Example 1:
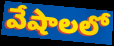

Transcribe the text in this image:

వేషాలలో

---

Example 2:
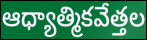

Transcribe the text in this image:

ఆధ్యాత్మికవేత్తల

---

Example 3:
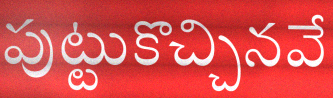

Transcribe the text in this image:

పుట్టుకొచ్చినవే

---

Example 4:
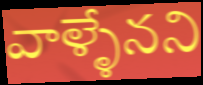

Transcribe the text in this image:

వాళ్ళేనని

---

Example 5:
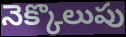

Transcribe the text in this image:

నెక్కొలుపు